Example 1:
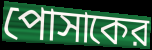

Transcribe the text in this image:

পোসাকের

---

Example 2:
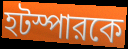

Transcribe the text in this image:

হটস্পারকে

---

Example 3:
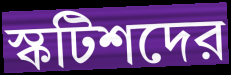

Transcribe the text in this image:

স্কটিশদের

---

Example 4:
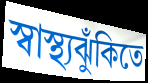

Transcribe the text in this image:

স্বাস্থ্যঝুঁকিতে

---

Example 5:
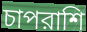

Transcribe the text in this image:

চাপরাশি